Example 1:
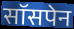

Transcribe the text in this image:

सॉसपेन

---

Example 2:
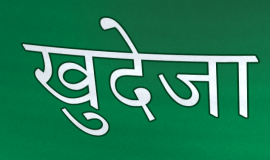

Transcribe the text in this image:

खुदेजा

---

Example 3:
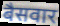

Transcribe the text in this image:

बैसवार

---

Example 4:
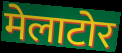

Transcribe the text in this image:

मेलाटोर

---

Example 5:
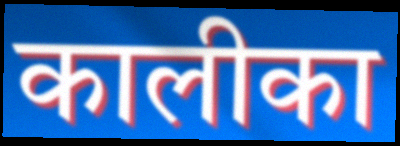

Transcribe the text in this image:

कालीका